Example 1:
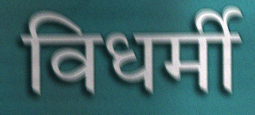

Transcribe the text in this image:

विधर्मी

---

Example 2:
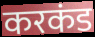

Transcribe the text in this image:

करकंड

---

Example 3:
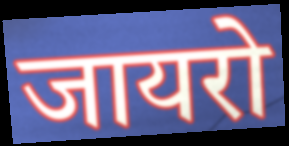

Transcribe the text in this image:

जायरो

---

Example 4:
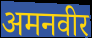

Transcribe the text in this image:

अमनवीर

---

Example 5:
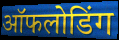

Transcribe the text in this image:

ऑफलोडिंग